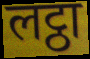
लट्ठा